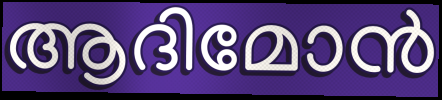
ആദിമോൻ